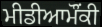
ਮੀਡੀਆਮੌਂਕੀ